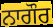
ਨਾਗੌਰ